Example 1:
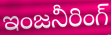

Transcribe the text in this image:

ఇంజనీరింగ్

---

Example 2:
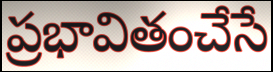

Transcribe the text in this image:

ప్రభావితంచేసే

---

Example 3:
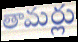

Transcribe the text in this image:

తామర్లు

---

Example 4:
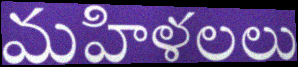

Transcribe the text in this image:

మహిళలలు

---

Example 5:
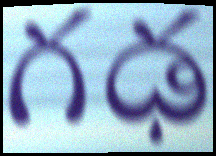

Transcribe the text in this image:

గఢ